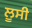
ਲੂਸੀ